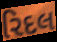
રિદલ